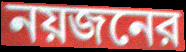
নয়জনের